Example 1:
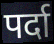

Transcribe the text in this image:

पर्दा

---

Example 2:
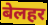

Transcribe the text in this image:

बेलहर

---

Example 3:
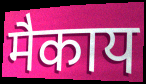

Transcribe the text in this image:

मैकाय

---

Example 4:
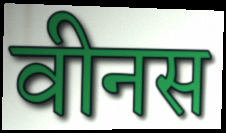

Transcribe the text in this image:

वीनस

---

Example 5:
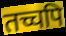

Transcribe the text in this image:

तच्चपि